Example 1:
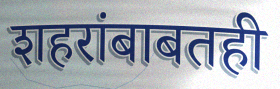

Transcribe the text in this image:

शहरांबाबतही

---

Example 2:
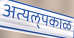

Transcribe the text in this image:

अत्यल्पकाळ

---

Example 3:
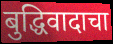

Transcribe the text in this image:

बुद्धिवादाचा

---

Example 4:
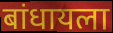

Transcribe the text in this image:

बांधायला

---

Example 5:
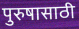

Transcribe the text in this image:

पुरुषासाठी